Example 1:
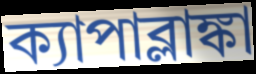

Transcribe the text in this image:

ক্যাপাব্লাঙ্কা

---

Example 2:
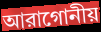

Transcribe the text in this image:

আরাগোনীয়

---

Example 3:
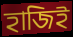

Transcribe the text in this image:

হাজিই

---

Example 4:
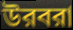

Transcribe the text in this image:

উরবরা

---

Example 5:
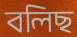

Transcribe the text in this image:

বলিছ